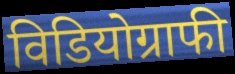
विडियोग्राफी